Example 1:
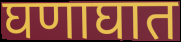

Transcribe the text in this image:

घणाघात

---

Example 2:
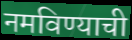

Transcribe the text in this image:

नमविण्याची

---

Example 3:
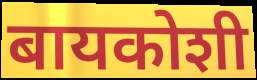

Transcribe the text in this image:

बायकोशी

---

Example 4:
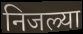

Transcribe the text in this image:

निजल्या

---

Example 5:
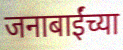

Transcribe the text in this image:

जनाबाईंच्या